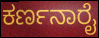
ಕರ್ಣನಾರೈ